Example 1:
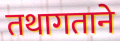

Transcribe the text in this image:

तथागताने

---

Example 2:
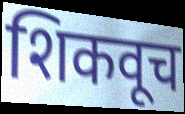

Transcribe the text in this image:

शिकवूच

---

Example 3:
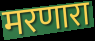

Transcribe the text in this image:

मरणारा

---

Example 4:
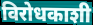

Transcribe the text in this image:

विरोधकाशी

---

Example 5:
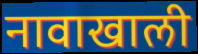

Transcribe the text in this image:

नावाखाली